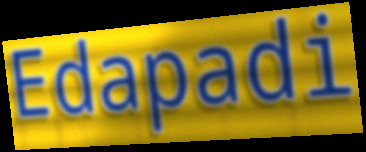
Edapadi